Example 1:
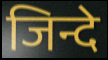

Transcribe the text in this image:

जिन्दे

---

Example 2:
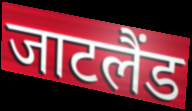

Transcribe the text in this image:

जाटलैंड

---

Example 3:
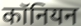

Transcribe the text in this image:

कॉनियन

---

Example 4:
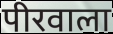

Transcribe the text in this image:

पीरवाला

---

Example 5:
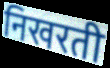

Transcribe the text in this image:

निखरती